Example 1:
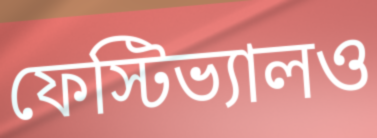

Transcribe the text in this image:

ফেস্টিভ্যালও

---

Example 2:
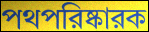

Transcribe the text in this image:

পথপরিষ্কারক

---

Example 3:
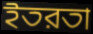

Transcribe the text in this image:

ইতরতা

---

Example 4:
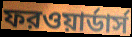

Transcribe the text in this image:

ফরওয়ার্ডার্স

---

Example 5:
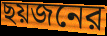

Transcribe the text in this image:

ছয়জনের